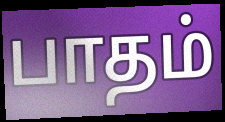
பாதம்